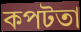
কপটতা